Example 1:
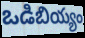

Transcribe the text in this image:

ఒడిబియ్యం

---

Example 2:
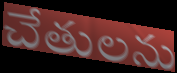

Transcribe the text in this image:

చేతులను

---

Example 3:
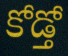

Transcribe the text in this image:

కోడ్తో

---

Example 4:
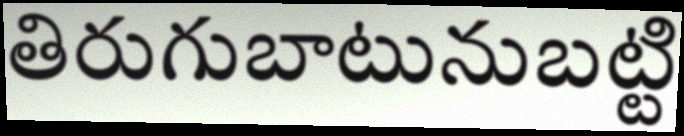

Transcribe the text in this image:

తిరుగుబాటునుబట్టి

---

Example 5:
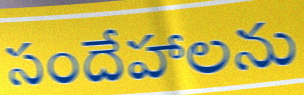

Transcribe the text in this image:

సందేహాలను